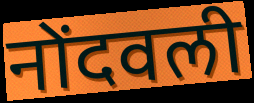
नोंदवली